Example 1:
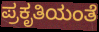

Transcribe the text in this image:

ಪ್ರಕೃತಿಯಂತೆ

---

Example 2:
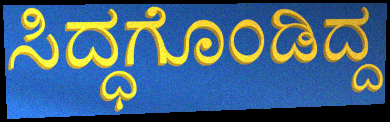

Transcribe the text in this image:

ಸಿದ್ಧಗೊಂಡಿದ್ದ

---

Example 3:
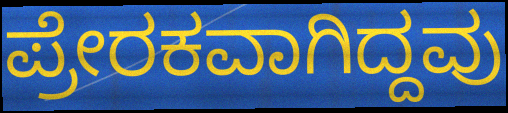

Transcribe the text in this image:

ಪ್ರೇರಕವಾಗಿದ್ದವು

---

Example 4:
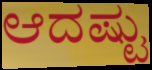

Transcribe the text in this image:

ಆದಷ್ಟು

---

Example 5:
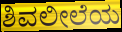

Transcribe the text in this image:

ಶಿವಲೀಲೆಯ